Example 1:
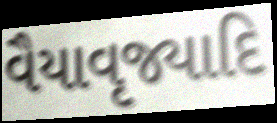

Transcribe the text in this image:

વૈયાવૃજ્યાદિ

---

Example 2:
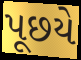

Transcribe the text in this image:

પૂછયે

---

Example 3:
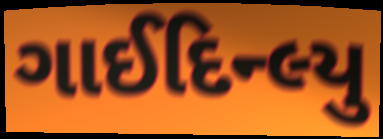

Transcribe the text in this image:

ગાઈદિન્લ્યુ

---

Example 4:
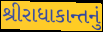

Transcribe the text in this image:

શ્રીરાધાકાન્તનું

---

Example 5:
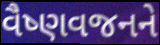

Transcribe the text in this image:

વૈષ્ણવજનને